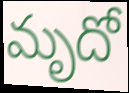
మృదో